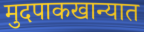
मुदपाकखान्यात